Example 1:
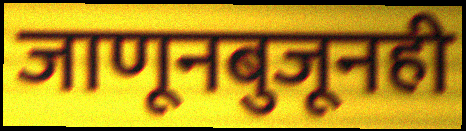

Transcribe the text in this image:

जाणूनबुजूनही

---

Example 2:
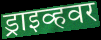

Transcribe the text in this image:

ड्राइव्हवर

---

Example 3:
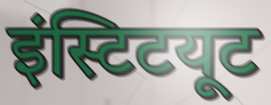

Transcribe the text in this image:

इंस्टिटयूट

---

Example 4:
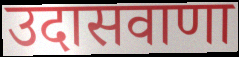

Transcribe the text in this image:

उदासवाणा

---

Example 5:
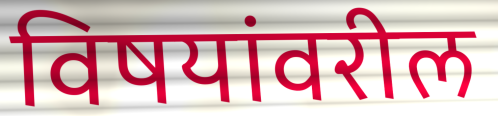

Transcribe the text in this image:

विषयांवरील